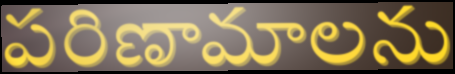
పరిణామాలను